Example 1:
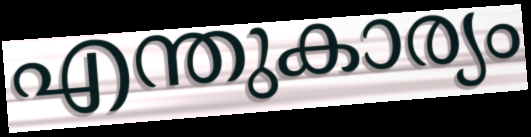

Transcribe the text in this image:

എന്തുകാര്യം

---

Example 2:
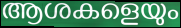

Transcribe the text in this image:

ആശകളെയും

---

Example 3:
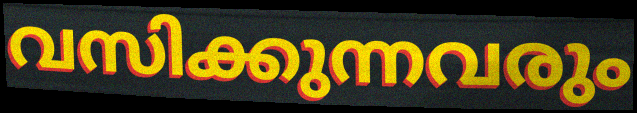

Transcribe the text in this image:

വസിക്കുന്നവരും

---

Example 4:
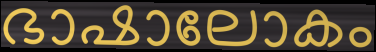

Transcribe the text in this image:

ഭാഷാലോകം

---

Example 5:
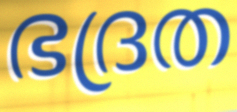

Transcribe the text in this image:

ഭദ്രത